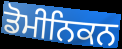
ਡੋਮੀਨਿਕਨ